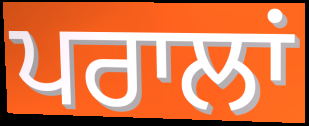
ਪਰਾਲਾਂ